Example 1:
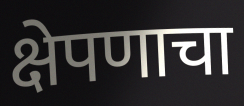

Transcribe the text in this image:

क्षेपणाचा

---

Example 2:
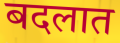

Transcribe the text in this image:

बदलात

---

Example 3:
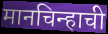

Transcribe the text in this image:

मानचिन्हाची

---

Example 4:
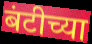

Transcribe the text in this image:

बंटीच्या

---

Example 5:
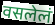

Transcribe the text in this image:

वसलेलं